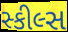
સ્કીલ્સ